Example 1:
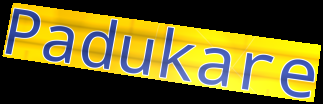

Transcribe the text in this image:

Padukare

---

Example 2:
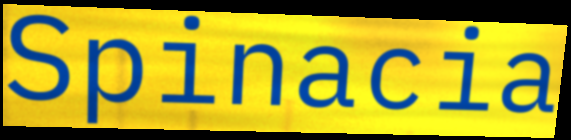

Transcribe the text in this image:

Spinacia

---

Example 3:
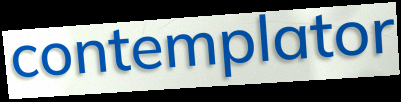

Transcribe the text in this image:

contemplator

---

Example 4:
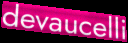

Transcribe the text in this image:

devaucelli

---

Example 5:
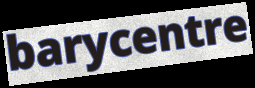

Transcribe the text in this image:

barycentre